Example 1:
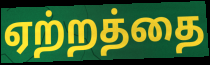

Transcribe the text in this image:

ஏற்றத்தை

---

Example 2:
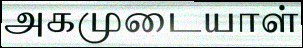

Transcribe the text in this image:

அகமுடையாள்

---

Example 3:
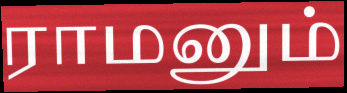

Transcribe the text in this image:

ராமனும்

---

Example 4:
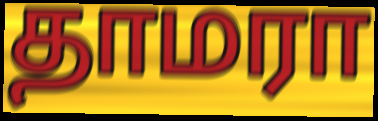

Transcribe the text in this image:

தாமரா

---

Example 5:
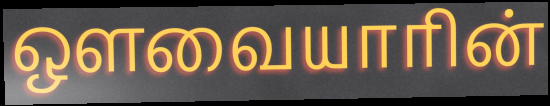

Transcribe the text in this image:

ஔவையாரின்